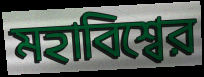
মহাবিশ্বের